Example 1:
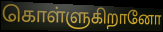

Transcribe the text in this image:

கொள்ளுகிறானோ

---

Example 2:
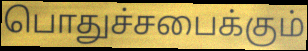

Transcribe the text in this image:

பொதுச்சபைக்கும்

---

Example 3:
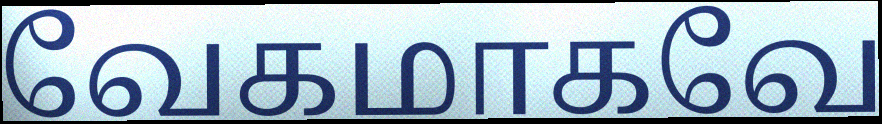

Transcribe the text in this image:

வேகமாகவே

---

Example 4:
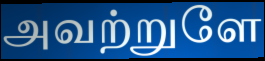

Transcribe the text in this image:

அவற்றுளே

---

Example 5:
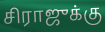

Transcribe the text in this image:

சிராஜுக்கு